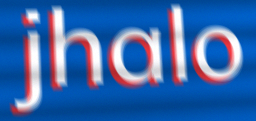
jhalo